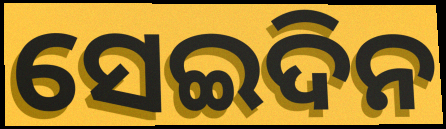
ସେଇଦିନ